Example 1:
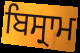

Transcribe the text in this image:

ਬਿਸ੍ਰਾਮ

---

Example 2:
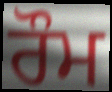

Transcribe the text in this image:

ਰੌਮ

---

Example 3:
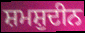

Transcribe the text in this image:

ਸ਼ਮਸ਼ੁਦੀਨ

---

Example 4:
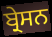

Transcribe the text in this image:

ਬ੍ਰੇਸਨ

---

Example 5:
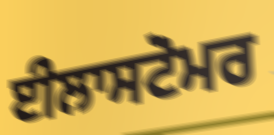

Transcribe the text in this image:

ਈਲਾਸਟੋਮਰ